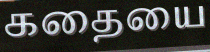
கதையை